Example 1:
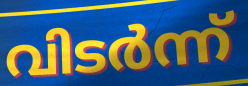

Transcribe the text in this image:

വിടർന്ന്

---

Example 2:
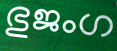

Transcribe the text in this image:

ഭുജംഗ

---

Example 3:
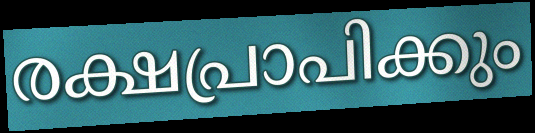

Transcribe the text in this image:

രക്ഷപ്രാപിക്കും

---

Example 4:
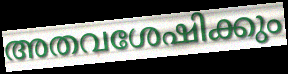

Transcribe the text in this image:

അതവശേഷിക്കും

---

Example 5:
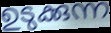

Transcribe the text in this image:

ഉടുക്കുന്ന